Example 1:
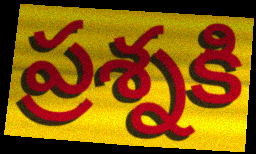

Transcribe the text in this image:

ప్రశ్నకి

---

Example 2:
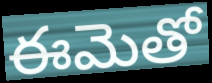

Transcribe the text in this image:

ఈమెతో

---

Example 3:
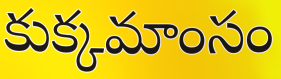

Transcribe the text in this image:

కుక్కమాంసం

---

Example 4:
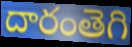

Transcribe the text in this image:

దారంతెగి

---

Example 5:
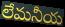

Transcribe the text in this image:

లేమనీయ